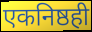
एकनिष्ठही